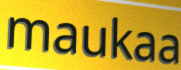
maukaa